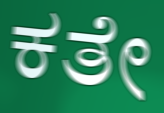
ಕತೇ